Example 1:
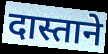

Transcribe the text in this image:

दास्ताने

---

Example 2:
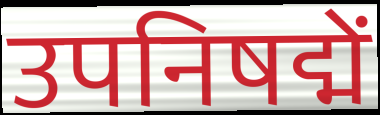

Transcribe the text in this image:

उपनिषद्में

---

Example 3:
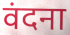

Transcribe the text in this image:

वंदना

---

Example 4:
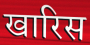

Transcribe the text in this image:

खारिस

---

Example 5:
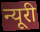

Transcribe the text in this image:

न्यूरी